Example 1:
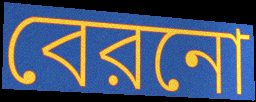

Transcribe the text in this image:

বেরনো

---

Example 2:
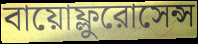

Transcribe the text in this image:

বায়োফ্লুরোসেন্স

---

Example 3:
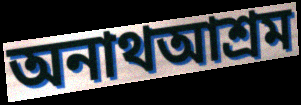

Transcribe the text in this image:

অনাথআশ্রম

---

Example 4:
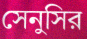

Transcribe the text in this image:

সেনুসির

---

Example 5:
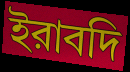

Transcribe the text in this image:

ইরাবদি